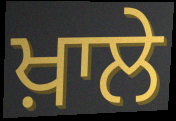
ਖ਼ਾਲੇ